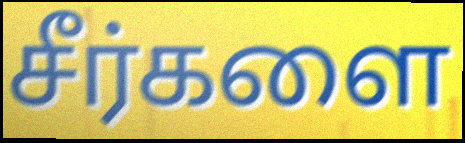
சீர்களை